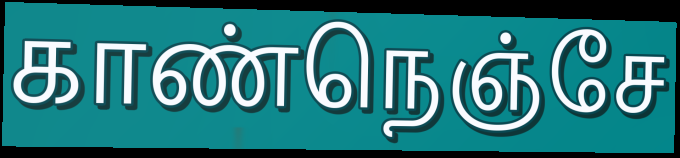
காண்நெஞ்சே